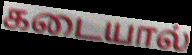
கடையால்